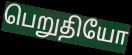
பெறுதியோ